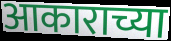
आकाराच्या